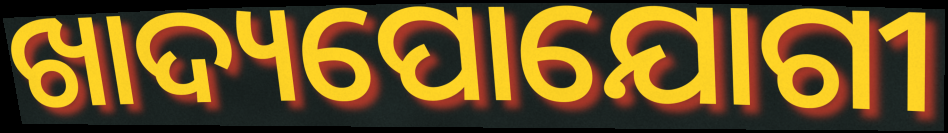
ଖାଦ୍ୟପୋଯୋଗୀ